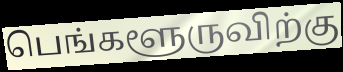
பெங்களூருவிற்கு